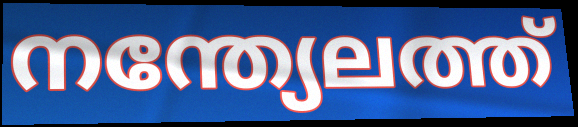
നന്ത്യേലത്ത്